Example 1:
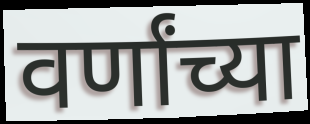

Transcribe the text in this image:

वर्णांच्या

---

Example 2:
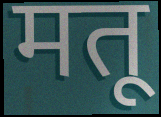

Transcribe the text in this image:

मतू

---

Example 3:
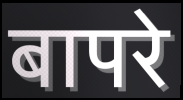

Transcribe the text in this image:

बापरे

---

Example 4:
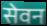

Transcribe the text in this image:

सेवन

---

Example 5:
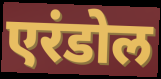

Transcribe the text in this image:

एरंडोल